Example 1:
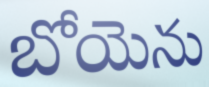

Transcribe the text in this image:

బోయెను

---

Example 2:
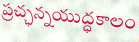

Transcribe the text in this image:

ప్రచ్ఛన్నయుద్ధకాలం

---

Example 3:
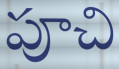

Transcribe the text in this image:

పూచి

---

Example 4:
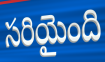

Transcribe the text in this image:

సరియైంది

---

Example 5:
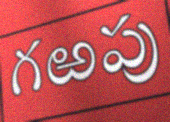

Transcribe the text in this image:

గఱపు